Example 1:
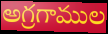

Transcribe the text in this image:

అగ్రగాముల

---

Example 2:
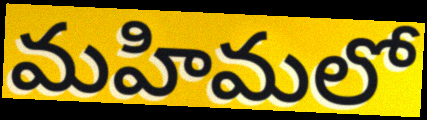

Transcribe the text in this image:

మహిమలో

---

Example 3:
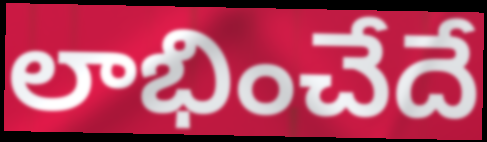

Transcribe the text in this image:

లాభించేదే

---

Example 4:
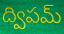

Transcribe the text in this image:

ద్విపమ్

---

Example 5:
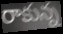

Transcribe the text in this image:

రాకున్న